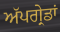
ਅੱਪਗ੍ਰੇਡਾਂ